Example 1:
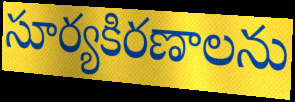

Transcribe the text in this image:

సూర్యకిరణాలను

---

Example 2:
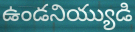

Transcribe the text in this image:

ఉండనియ్యుడి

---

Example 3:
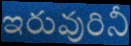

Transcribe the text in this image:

ఇరువురినీ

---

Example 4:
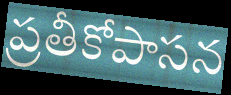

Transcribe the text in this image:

ప్రతీకోపాసన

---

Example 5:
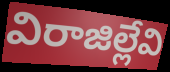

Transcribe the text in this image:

విరాజిల్లేవి